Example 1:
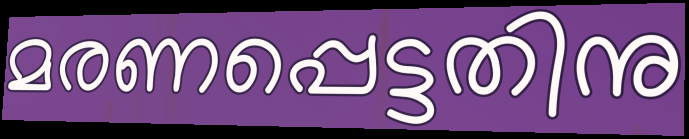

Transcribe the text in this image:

മരണപ്പെട്ടതിനു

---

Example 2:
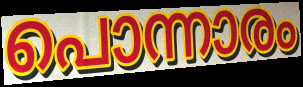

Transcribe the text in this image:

പൊന്നാരം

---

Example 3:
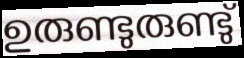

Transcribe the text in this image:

ഉരുണ്ടുരുണ്ടു്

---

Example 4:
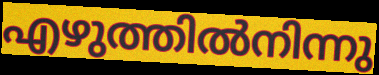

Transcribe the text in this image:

എഴുത്തിൽനിന്നു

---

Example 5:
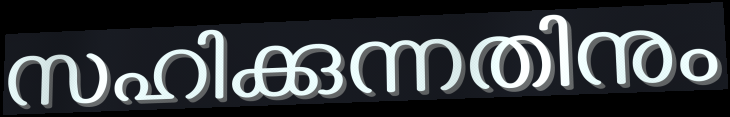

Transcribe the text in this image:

സഹിക്കുന്നതിനും